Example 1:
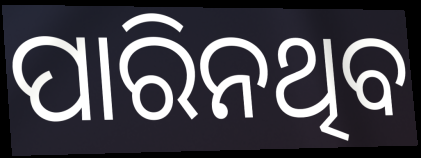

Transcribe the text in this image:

ପାରିନଥିବ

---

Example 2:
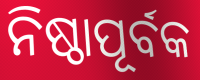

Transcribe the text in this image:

ନିଷ୍ଠାପୂର୍ବକ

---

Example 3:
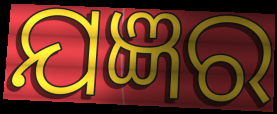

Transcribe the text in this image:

ଯଜ୍ଞର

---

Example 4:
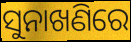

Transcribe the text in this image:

ସୁନାଖଣିରେ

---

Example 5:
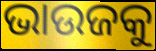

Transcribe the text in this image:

ଭାଉଜକୁ